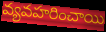
వ్యవహరించాయి